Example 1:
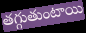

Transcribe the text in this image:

తగ్గుతుంటాయి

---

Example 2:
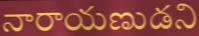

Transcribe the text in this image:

నారాయణుడని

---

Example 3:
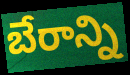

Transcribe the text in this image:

బేరాన్ని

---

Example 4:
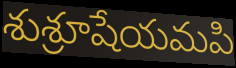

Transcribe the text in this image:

శుశ్రూషేయమపి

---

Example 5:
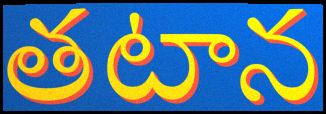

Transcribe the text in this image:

తటాన